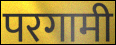
परगामी